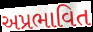
અપ્રભાવિત